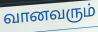
வானவரும்